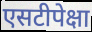
एसटीपेक्षा